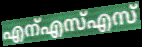
എന്എസ്എസ്